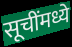
सूचींमध्ये